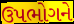
ઉપભોગને